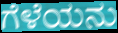
ಗೆಳೆಯನು